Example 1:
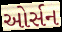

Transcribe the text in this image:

ઓર્સન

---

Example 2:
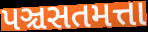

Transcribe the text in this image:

પઞ્ચસતમત્તા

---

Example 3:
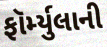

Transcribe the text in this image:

ફૉર્મ્યુલાની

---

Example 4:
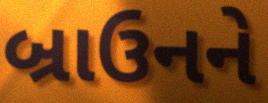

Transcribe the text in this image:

બ્રાઉનને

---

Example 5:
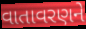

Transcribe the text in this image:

વાતાવરણને